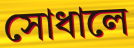
সোধালে